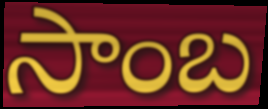
సాంబ